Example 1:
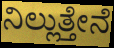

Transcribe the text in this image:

ನಿಲ್ಲುತ್ತೇನೆ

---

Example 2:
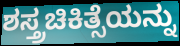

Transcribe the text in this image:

ಶಸ್ತ್ರಚಿಕಿತ್ಸೆಯನ್ನು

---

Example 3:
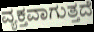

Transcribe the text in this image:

ವ್ಯಕ್ತವಾಗುತ್ತದೆ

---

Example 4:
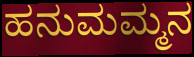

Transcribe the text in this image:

ಹನುಮಮ್ಮನ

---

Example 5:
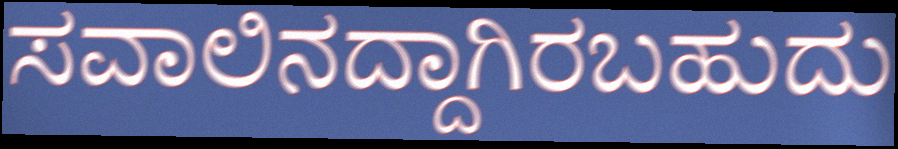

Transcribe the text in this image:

ಸವಾಲಿನದ್ದಾಗಿರಬಹುದು